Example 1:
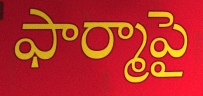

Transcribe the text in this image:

ఫార్మాపై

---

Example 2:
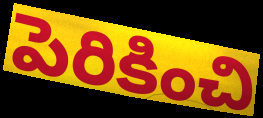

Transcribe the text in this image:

పెరికించి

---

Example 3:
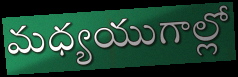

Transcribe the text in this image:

మధ్యయుగాల్లో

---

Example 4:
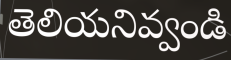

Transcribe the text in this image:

తెలియనివ్వండి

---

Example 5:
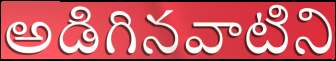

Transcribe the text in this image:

అడిగినవాటిని